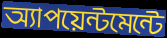
অ্যাপয়েন্টমেন্টে